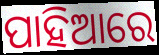
ପାହିଆରେ